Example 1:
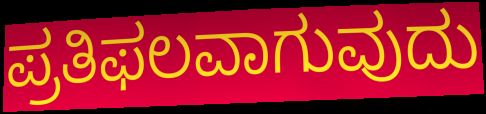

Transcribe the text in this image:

ಪ್ರತಿಫಲವಾಗುವುದು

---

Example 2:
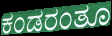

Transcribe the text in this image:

ಕಂಡರಂತೂ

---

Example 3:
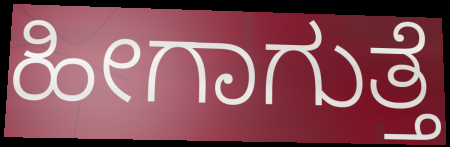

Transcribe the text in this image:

ಹೀಗಾಗುತ್ತೆ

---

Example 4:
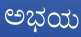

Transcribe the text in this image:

ಅಭಯ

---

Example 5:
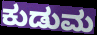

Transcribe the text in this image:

ಕುಡುಮ